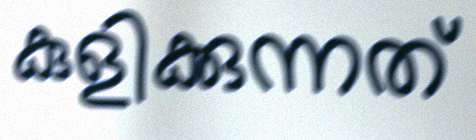
കുളിക്കുന്നത്